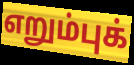
எறும்புக்